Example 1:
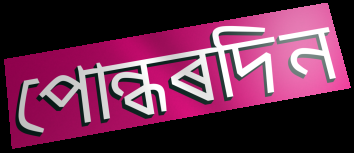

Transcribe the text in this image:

পোন্ধৰদিন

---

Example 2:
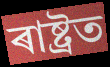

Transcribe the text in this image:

ৰাষ্ট্ৰত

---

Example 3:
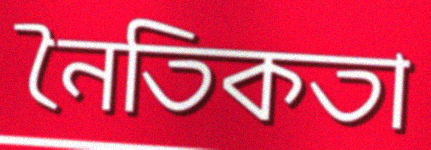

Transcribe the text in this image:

নৈতিকতা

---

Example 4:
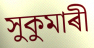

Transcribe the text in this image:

সুকুমাৰী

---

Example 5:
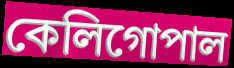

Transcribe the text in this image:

কেলিগোপাল